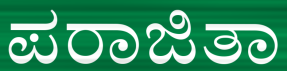
ಪರಾಜಿತಾ